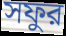
সফুর